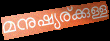
മനുഷ്യര്ക്കുള്ള